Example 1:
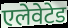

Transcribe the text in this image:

एलेवेटेड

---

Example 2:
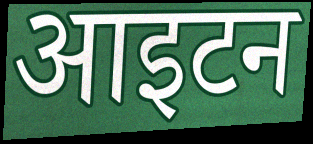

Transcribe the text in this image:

आइटन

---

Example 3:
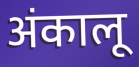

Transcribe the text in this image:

अंकालू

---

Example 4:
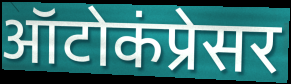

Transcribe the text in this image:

ऑटोकंप्रेसर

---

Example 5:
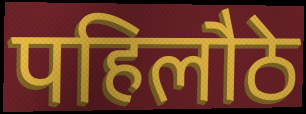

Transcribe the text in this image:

पहिलौठे